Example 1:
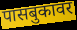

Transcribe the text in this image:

पासबुकावर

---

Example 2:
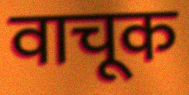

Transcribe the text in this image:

वाचूक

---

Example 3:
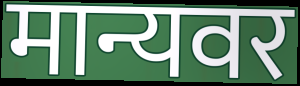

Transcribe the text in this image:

मान्यवर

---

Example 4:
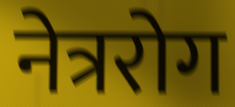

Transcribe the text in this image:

नेत्ररोग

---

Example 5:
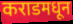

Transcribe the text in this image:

कराडमधून